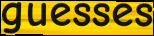
guesses